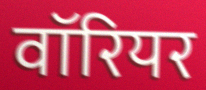
वॉरियर